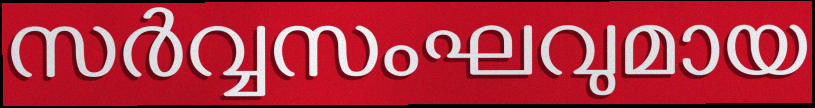
സർവ്വസംഘവുമായ